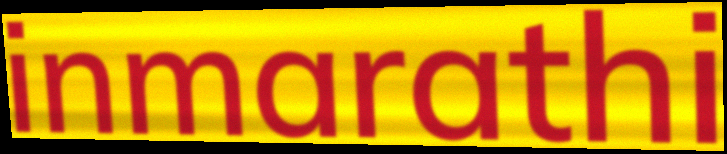
inmarathi